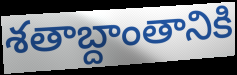
శతాబ్దాంతానికి